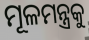
ମୂଳମନ୍ତ୍ରକୁ